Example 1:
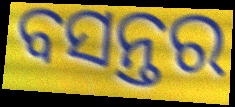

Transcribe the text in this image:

ବସନ୍ତର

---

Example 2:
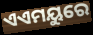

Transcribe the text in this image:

ଏଏମୟୁରେ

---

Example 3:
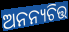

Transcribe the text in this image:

ଅନନ୍ୟଚିତ୍ତ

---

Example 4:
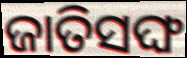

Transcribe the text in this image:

ଜାତିସଙ୍ଘ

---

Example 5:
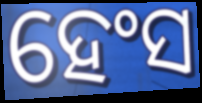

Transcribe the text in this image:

ହେଂସ